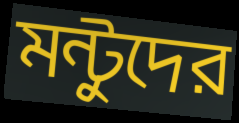
মন্টুদের